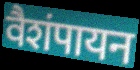
वैशंपायन